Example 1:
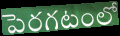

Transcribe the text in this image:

పెరగటంలో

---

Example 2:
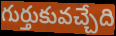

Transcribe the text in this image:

గుర్తుకువచ్చేది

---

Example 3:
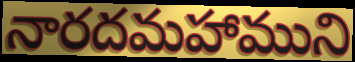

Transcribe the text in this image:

నారదమహాముని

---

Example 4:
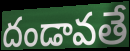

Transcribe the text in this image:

దండావతే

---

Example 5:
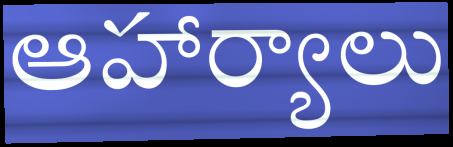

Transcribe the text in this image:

ఆహార్యాలు